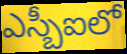
ఎస్బీఐలో